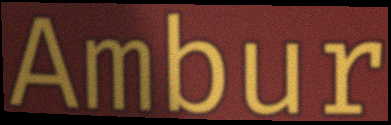
Ambur